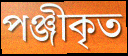
পঞ্জীকৃত